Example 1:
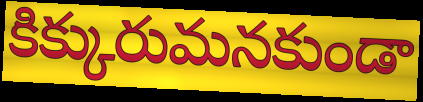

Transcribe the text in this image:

కిక్కురుమనకుండా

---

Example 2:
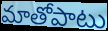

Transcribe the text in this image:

మాతోపాటు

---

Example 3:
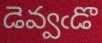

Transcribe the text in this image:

డెవ్వఁడొ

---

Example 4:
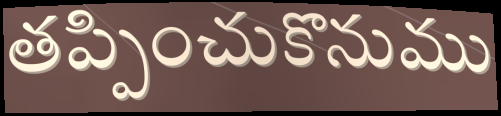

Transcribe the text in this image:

తప్పించుకొనుము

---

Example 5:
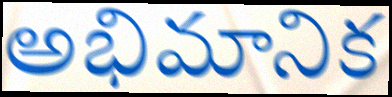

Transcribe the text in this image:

అభిమానిక